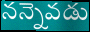
నన్నెవడు